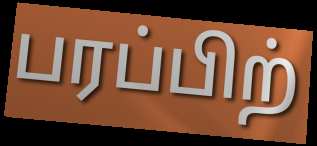
பரப்பிற்